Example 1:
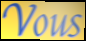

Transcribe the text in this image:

Vous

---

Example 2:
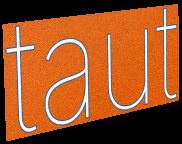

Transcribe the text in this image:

taut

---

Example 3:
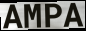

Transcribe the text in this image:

AMPA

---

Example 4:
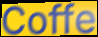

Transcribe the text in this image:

Coffe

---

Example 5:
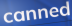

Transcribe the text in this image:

canned